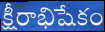
క్షీరాభిషేకం